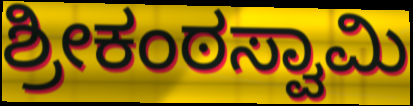
ಶ್ರೀಕಂಠಸ್ವಾಮಿ